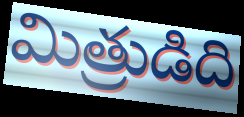
మిత్రుడిది